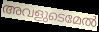
അവളുടെമേൽ